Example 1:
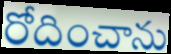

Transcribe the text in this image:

రోదించాను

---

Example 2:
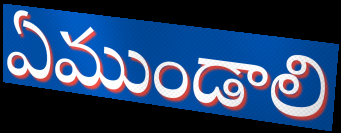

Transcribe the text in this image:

ఏముండాలి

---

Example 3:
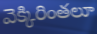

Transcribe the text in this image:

వెక్కిరింతలూ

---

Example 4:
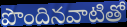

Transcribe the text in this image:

పొందినవాటితో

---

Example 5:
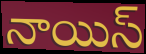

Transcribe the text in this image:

నాయిస్